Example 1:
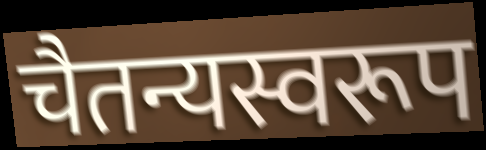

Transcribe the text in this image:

चैतन्यस्वरूप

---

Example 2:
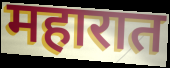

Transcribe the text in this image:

महारात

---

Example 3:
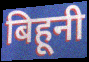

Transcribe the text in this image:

बिहूनी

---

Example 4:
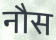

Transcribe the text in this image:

नौस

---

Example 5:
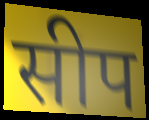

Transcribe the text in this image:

सीप